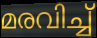
മരവിച്ച്